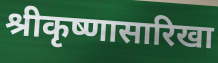
श्रीकृष्णासारिखा